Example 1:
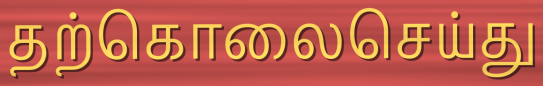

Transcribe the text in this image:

தற்கொலைசெய்து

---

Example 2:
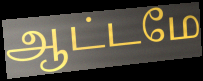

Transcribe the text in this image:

ஆட்டமே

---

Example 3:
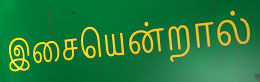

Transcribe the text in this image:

இசையென்றால்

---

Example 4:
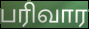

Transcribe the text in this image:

பரிவார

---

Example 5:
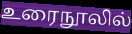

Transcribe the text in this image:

உரைநூலில்